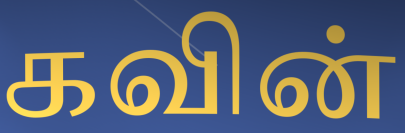
கவின்